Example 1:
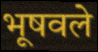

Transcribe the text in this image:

भूषवले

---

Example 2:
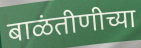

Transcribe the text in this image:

बाळंतीणीच्या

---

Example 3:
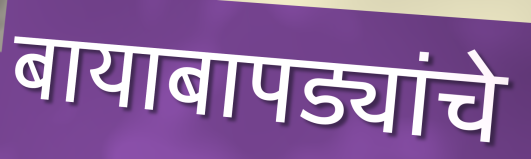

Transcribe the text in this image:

बायाबापड्यांचे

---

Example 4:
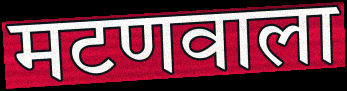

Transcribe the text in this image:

मटणवाला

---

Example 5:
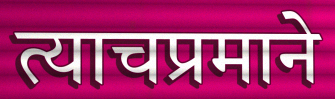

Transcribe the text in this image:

त्याचप्रमाने